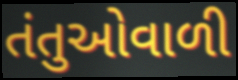
તંતુઓવાળી